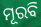
ମୂରବି